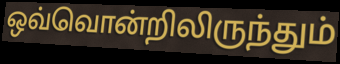
ஒவ்வொன்றிலிருந்தும்